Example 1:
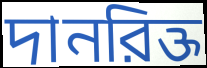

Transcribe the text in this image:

দানরিক্ত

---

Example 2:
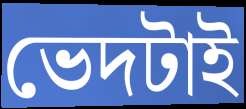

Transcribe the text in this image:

ভেদটাই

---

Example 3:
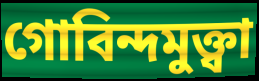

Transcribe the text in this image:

গোবিন্দমুক্ত্বা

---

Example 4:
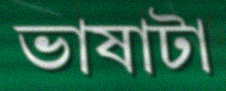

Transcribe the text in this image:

ভাষাটা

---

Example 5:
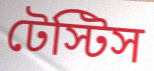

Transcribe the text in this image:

টেস্টিস